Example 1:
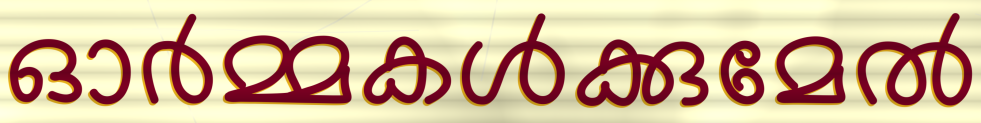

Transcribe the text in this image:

ഓർമ്മകൾക്കുമേൽ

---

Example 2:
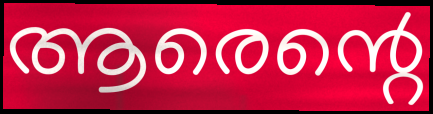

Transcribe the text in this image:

ആരെന്റെ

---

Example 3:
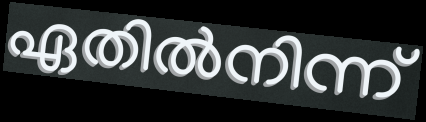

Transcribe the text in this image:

ഏതിൽനിന്ന്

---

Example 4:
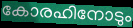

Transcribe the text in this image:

കോരഹിനോടും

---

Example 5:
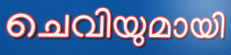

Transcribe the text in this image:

ചെവിയുമായി